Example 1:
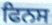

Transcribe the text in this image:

ਫਿਨਸ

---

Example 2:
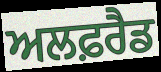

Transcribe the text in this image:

ਅਲਫ਼ਰੈਡ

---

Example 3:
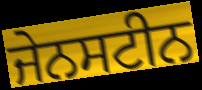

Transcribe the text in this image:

ਜੇਨਸਟੀਨ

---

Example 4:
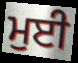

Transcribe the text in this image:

ਮੁਈ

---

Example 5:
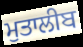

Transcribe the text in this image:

ਮੁਤਾਲੀਬ